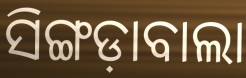
ସିଙ୍ଗଡ଼ାବାଲା